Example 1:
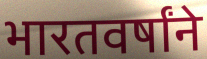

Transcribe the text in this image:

भारतवर्षांने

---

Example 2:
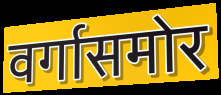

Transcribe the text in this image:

वर्गासमोर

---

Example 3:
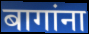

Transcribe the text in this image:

बागांना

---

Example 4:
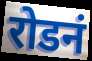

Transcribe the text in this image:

रोडनं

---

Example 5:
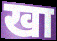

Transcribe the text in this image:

खा